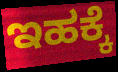
ಇಹಕ್ಕೆ